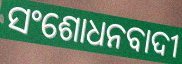
ସଂଶୋଧନବାଦୀ